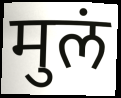
मुलं